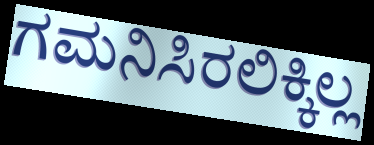
ಗಮನಿಸಿರಲಿಕ್ಕಿಲ್ಲ